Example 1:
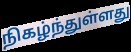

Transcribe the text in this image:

நிகழ்ந்துள்ளது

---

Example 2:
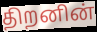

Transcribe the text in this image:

திறனின்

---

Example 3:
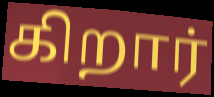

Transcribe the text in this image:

கிறார்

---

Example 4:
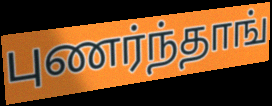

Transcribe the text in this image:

புணர்ந்தாங்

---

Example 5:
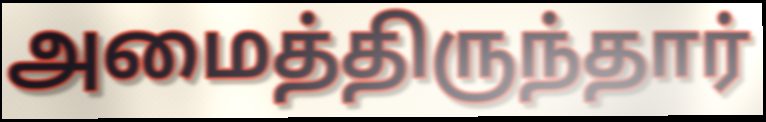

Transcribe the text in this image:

அமைத்திருந்தார்